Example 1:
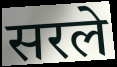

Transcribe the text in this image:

सरले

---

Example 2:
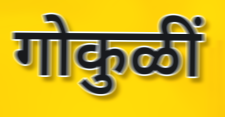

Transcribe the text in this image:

गोकुळीं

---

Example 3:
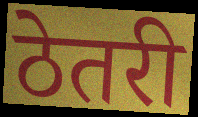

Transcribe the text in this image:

ठेतरी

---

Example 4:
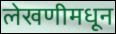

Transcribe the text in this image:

लेखणीमधून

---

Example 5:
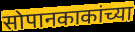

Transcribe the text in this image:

सोपानकाकांच्या